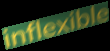
inflexible